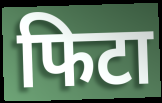
फिटा